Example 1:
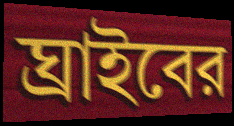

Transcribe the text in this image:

ঘ্রাইবের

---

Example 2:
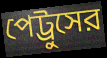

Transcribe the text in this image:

পেট্রুসের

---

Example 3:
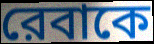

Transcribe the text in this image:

রেবাকে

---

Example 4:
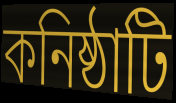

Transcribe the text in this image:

কনিষ্ঠাটি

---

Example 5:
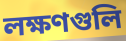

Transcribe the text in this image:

লক্ষণগুলি